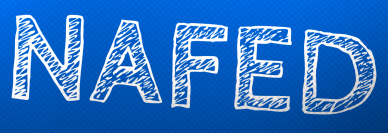
NAFED